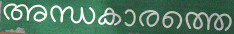
അന്ധകാരത്തെ